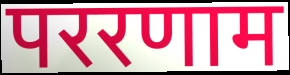
पररणाम